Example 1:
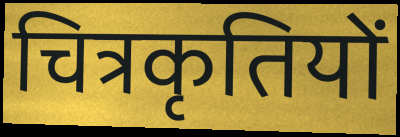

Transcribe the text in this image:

चित्रकृतियों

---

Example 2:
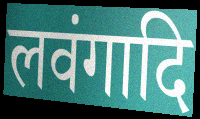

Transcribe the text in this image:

लवंगादि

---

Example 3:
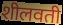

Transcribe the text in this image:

शीलवती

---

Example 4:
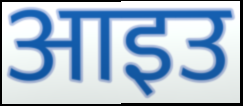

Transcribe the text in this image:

आइउ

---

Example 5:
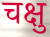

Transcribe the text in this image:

चक्षु